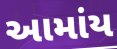
આમાંય